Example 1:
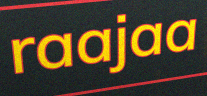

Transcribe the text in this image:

raajaa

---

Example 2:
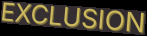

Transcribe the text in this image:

EXCLUSION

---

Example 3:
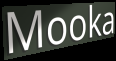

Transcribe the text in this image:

Mooka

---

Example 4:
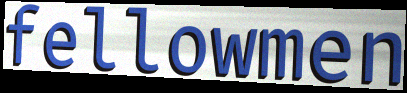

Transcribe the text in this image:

fellowmen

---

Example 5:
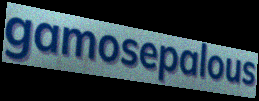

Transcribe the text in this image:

gamosepalous